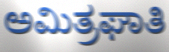
ಅಮಿತ್ರಘಾತಿ